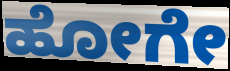
ಹೋಗೇ